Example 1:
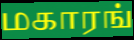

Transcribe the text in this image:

மகாரங்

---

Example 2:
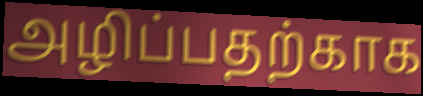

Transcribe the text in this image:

அழிப்பதற்காக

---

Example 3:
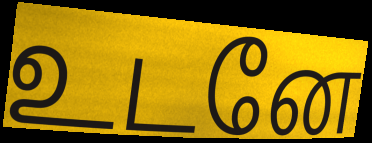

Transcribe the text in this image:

உடனே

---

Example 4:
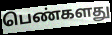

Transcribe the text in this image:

பெண்களது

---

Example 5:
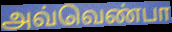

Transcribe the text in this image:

அவ்வெண்பா